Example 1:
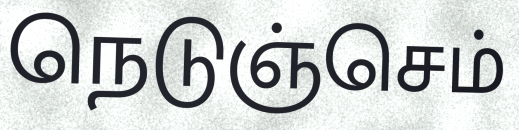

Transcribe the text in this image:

நெடுஞ்செம்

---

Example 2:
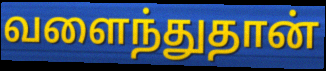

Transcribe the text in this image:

வளைந்துதான்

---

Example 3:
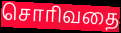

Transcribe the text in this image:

சொரிவதை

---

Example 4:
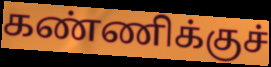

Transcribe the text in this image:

கண்ணிக்குச்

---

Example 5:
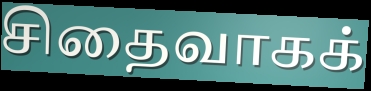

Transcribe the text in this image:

சிதைவாகக்